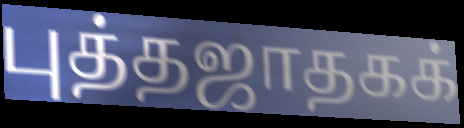
புத்தஜாதகக்